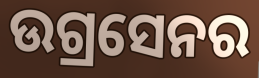
ଉଗ୍ରସେନର